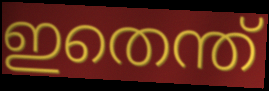
ഇതെന്ത്